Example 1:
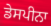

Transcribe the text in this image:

ਡੇਸਪੀਨਾ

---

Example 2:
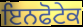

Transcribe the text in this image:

ਇਨਫੋਟੇਕ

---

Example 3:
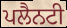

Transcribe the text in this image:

ਪਲੈਨਟੀ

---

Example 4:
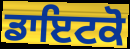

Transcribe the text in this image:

ਡਾਇਟਕੋ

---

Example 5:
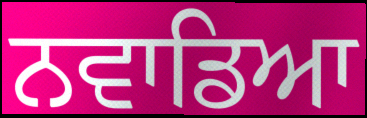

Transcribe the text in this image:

ਨਵਾਡਿਆ